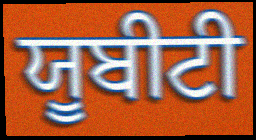
ਯੂਬੀਟੀ